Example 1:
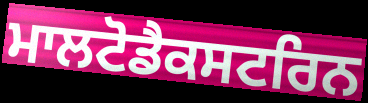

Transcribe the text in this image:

ਮਾਲਟੋਡੈਕਸਟਰਿਨ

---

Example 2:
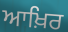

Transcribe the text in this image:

ਆਖ਼ਿਰ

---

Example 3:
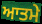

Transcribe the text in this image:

ਆਤਮੇ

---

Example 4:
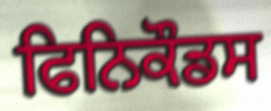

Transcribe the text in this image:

ਫਿਨਿਕੌਡਸ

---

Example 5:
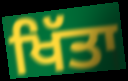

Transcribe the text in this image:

ਖਿੱਤਾ